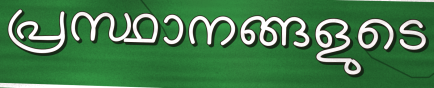
പ്രസ്ഥാനങ്ങളുടെ